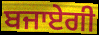
ਬਜਾਏਗੀ